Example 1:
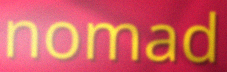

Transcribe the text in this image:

nomad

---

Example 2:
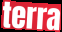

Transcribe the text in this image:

terra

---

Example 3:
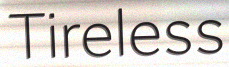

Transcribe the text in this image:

Tireless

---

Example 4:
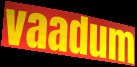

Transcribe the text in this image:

vaadum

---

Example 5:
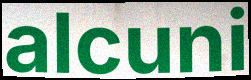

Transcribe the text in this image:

alcuni